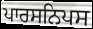
ਪਾਰਸਨਿਪਸ